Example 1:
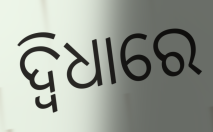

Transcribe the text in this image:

ଦ୍ଵିଧାରେ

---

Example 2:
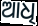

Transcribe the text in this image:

ଆଧି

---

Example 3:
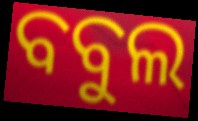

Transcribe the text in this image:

ବବୁଲ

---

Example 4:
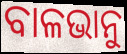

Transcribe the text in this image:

ବାଳଭାନୁ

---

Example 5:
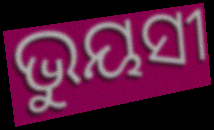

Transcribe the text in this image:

ଭୁୟସୀ